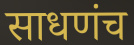
साधणंच